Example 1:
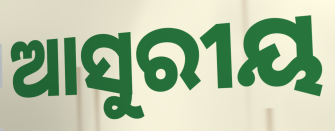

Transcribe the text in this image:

ଆସୁରୀୟ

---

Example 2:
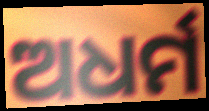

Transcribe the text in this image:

ଅଧର୍ମ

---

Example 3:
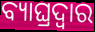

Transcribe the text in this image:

ବ୍ୟାଘ୍ରଦ୍ଵାର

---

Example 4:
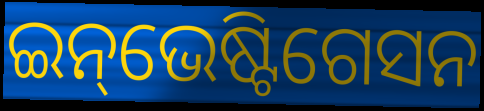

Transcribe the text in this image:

ଇନ୍‌ଭେଷ୍ଟିଗେସନ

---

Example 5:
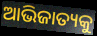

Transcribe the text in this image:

ଆଭିଜାତ୍ୟକୁ